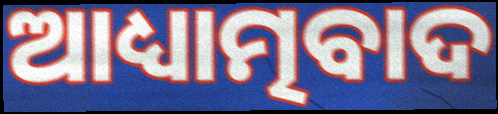
ଆଧ୍ୟାତ୍ମବାଦ